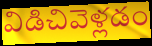
విడిచివెళ్లడం